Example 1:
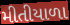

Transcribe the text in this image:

મીતીયાળા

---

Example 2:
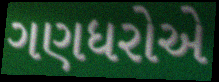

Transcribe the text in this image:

ગણધરોએ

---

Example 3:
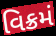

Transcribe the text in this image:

વિક્રમં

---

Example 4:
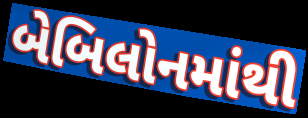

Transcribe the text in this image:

બેબિલોનમાંથી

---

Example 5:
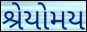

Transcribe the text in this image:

શ્રેયોમય